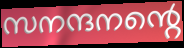
സനന്ദനന്റെ